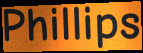
Phillips